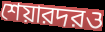
শেয়ারদরও